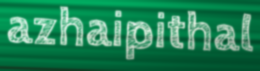
azhaipithal